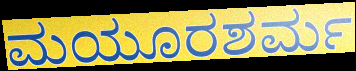
ಮಯೂರಶರ್ಮ